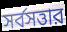
সর্বসত্তার